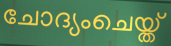
ചോദ്യംചെയ്ത്